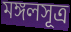
মঙ্গলসূত্র